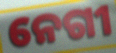
ନେଗୀ